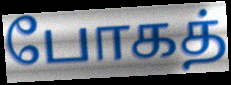
போகத்